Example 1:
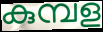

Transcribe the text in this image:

കുമ്പള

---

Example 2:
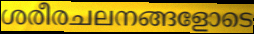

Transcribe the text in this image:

ശരീരചലനങ്ങളോടെ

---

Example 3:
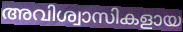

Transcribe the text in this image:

അവിശ്വാസികളായ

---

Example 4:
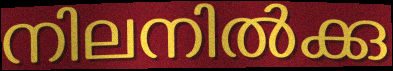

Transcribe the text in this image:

നിലനിൽക്കു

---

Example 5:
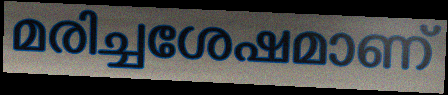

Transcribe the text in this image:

മരിച്ചശേഷമാണ്